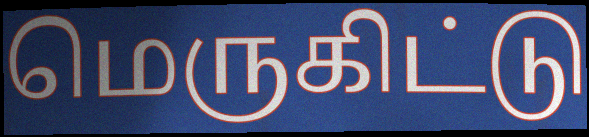
மெருகிட்டு